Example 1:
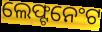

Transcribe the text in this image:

ଲେଫ୍ଟନେଂଟ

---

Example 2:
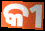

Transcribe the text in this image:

କୀ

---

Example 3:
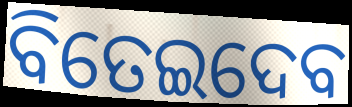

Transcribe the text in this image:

ବିତେଇଦେବ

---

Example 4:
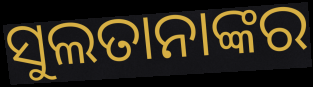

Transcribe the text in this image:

ସୁଲତାନାଙ୍କର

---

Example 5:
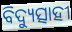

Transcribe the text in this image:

ବିଦ୍ୟୁତ୍ସାହୀ